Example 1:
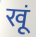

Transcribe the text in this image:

खूं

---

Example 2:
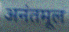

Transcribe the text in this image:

अनंतमूल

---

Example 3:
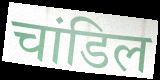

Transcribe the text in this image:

चांडिल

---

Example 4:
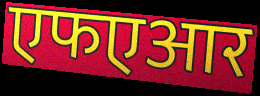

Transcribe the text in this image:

एफएआर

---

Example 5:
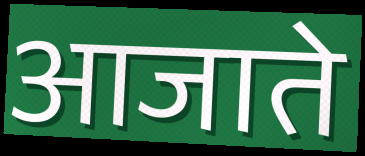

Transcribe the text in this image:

आजाते